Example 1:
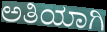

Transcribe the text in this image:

ಅತಿಯಾಗಿ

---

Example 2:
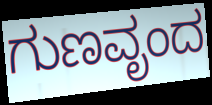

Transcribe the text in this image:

ಗುಣವೃಂದ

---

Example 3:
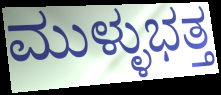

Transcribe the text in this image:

ಮುಳ್ಳುಭತ್ತ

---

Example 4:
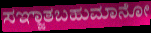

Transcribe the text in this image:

ಸಞ್ಜಾತಬಹುಮಾನೋ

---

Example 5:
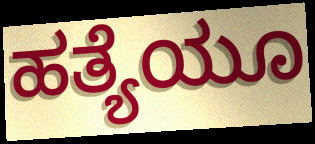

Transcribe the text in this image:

ಹತ್ಯೆಯೂ